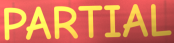
PARTIAL